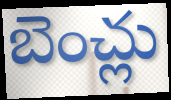
బెంచ్లు